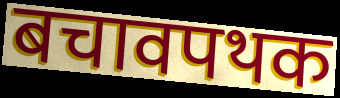
बचावपथक